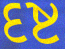
દષ્ટ